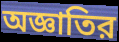
অজ্ঞাতির